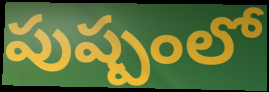
పుష్పంలో